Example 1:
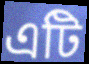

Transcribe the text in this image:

এটি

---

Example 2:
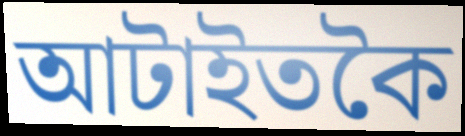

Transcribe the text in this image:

আটাইতকৈ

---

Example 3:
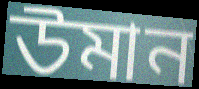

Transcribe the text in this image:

উমান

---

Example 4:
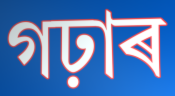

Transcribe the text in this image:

গঢ়াৰ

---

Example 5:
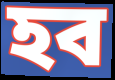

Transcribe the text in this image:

হব